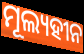
ମୂଲ୍ୟହୀନ